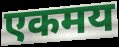
एकमय